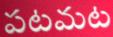
పటమట